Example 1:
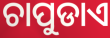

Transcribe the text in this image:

ଚାପୁଡାଏ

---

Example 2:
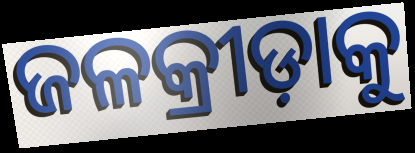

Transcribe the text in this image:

ଜଳକ୍ରୀଡ଼ାକୁ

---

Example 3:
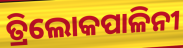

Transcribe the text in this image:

ତ୍ରିଲୋକପାଳିନୀ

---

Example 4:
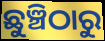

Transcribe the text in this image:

ଛୁଞ୍ଚିଠାରୁ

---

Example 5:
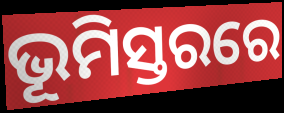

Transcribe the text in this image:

ଭୂମିସ୍ତରରେ